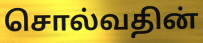
சொல்வதின்